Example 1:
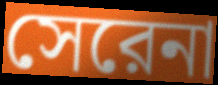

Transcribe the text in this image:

সেরেনা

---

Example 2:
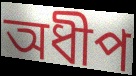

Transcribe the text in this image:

অধীপ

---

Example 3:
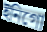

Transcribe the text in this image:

ইনিগো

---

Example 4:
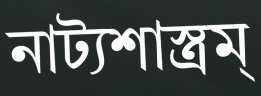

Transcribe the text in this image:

নাট্যশাস্ত্রম্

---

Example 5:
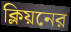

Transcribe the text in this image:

ক্লিয়নের